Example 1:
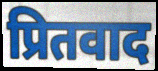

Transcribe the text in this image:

प्रितवाद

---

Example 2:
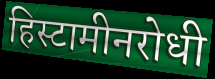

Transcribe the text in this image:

हिस्टामीनरोधी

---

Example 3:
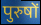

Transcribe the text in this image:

पुरुषों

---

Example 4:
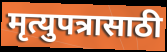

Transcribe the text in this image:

मृत्युपत्रासाठी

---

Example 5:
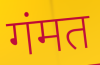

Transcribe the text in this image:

गंमत